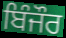
ਬਿੰਜੌਰ